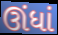
ઊંધાં